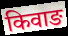
किवाङ